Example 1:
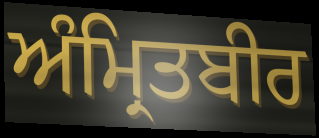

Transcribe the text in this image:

ਅੰਮ੍ਰਿਤਬੀਰ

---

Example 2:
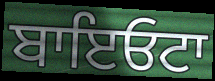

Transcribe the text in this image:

ਬਾਇਓਟਾ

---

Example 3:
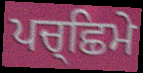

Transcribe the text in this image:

ਪਚ੍ਛਿਮੇ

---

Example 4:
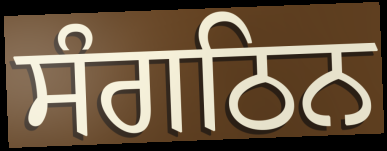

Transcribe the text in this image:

ਸੰਗਠਿਨ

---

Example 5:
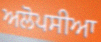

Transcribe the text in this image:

ਅਲੋਪਸੀਆ